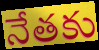
నేతకు